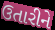
ઉતારીને